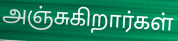
அஞ்சுகிறார்கள்